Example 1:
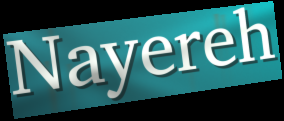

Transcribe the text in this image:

Nayereh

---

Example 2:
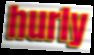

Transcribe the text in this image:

hurly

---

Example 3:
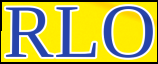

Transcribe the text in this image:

RLO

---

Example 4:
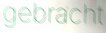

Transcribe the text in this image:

gebracht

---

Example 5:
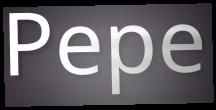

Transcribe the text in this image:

Pepe